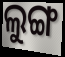
ଲୁଙ୍ଗ